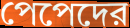
পেপেদের